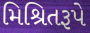
મિશ્રિતરૂપે